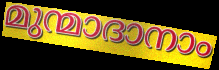
മുന്മാദാനാം